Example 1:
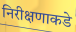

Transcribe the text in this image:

निरीक्षणाकडे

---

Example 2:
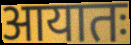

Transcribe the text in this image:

आयातः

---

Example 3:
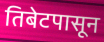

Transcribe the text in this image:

तिबेटपासून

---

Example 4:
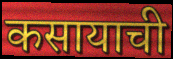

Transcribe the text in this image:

कसायाची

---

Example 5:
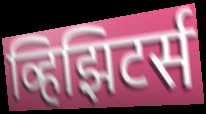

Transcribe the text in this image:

व्हिझिटर्स